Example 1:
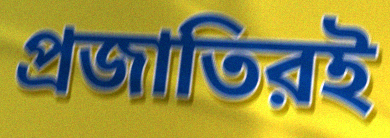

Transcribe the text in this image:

প্রজাতিরই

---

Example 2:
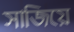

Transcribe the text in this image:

সাজিয়ে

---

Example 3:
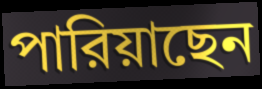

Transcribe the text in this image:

পারিয়াছেন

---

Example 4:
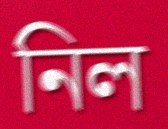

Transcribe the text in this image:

নিল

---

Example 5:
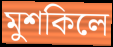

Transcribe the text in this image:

মুশকিলে